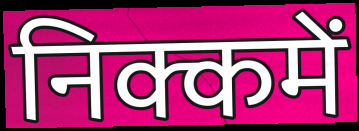
निक्कमें